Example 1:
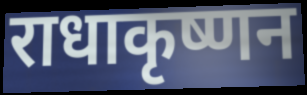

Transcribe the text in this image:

राधाकृष्णन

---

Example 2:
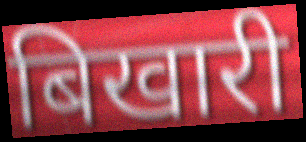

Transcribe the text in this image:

बिखारी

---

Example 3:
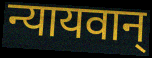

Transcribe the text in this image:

न्यायवान्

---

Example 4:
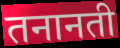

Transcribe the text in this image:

तनानती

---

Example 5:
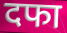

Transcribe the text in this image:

दफा